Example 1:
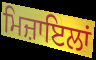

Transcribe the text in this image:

ਮਿਜ਼ਾਇਲਾਂ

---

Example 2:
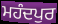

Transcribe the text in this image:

ਮਹੰਦਪੁਰ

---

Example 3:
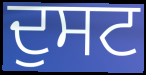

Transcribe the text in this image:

ਦੁਸਟ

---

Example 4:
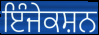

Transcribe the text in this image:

ਇੰਜੇਕਸ਼ਨ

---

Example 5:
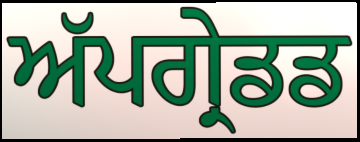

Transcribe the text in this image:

ਅੱਪਗ੍ਰੇਡਡ